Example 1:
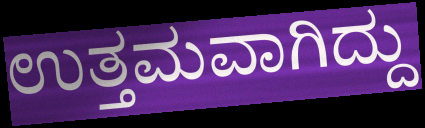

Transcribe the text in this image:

ಉತ್ತಮವಾಗಿದ್ದು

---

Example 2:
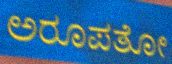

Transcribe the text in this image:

ಅರೂಪತೋ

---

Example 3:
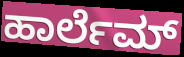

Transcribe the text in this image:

ಹಾರ್ಲೆಮ್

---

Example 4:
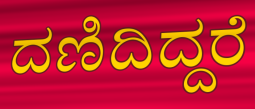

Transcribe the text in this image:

ದಣಿದಿದ್ದರೆ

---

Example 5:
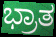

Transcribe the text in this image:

ಭ್ರಾತ